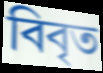
বিবৃত